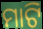
ମାଟି